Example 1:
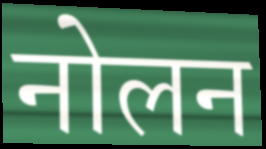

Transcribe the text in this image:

नोलन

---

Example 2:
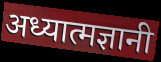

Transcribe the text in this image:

अध्यात्मज्ञानी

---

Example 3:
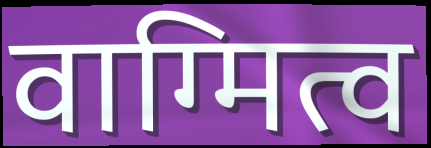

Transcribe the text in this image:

वाग्मित्व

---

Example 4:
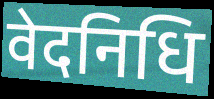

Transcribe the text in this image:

वेदनिधि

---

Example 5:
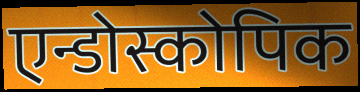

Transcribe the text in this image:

एन्डोस्कोपिक